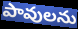
పావులను